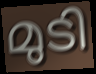
മുടി